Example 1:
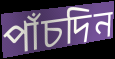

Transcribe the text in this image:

পাঁচদিন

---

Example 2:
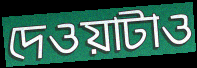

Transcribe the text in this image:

দেওয়াটাও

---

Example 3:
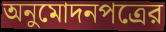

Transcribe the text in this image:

অনুমোদনপত্রের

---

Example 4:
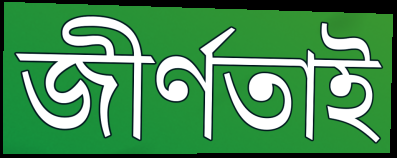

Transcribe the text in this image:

জীর্ণতাই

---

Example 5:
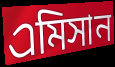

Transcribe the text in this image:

এমিসান